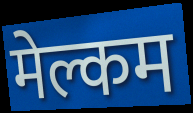
मेल्कम